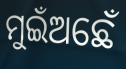
ମୁଇଁଅଛେଁ